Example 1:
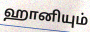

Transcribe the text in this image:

ஹானியும்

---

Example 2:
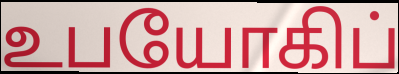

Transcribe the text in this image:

உபயோகிப்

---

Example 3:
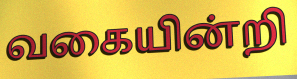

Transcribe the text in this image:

வகையின்றி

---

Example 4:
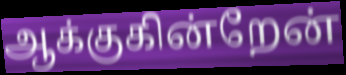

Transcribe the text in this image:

ஆக்குகின்றேன்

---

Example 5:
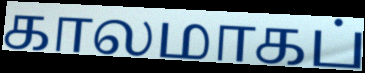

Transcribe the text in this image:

காலமாகப்